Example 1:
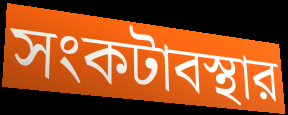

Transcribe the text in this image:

সংকটাবস্থার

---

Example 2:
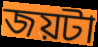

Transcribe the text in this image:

জয়টা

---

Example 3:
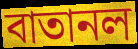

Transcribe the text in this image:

বাতানল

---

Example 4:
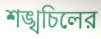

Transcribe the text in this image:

শঙ্খচিলের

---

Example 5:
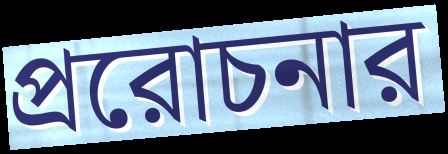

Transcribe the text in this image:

প্ররোচনার